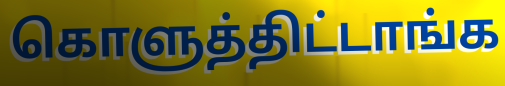
கொளுத்திட்டாங்க